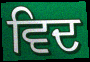
ਵਿਦ